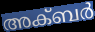
അക്ബർ